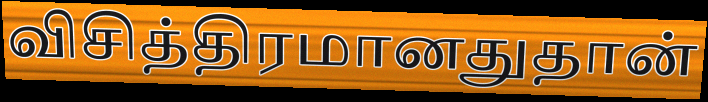
விசித்திரமானதுதான்